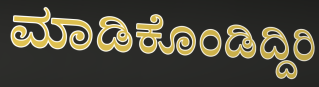
ಮಾಡಿಕೊಂಡಿದ್ದಿರಿ